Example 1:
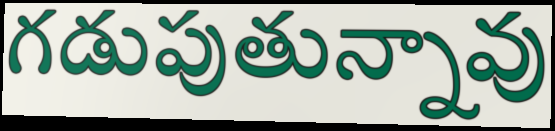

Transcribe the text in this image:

గడుపుతున్నావు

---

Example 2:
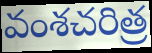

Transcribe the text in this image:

వంశచరిత్ర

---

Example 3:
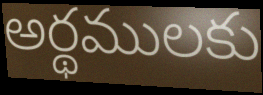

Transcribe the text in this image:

అర్థములకు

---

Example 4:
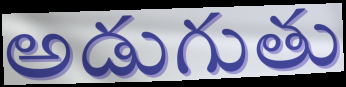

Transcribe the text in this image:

అడుగుతు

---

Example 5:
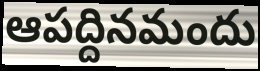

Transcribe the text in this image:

ఆపద్దినమందు